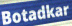
Botadkar